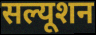
सल्यूशन